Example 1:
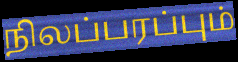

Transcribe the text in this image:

நிலப்பரப்பும்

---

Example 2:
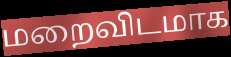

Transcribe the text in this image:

மறைவிடமாக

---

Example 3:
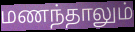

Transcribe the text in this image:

மணந்தாலும்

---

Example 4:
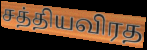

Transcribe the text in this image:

சத்தியவிரத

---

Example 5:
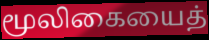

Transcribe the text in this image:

மூலிகையைத்